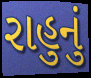
રાહુનું